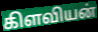
கிளவியன்